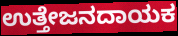
ಉತ್ತೇಜನದಾಯಕ